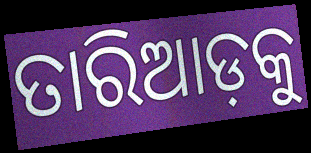
ତାରିଆଡ଼କୁ